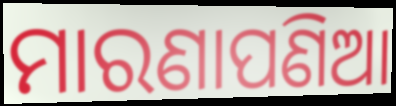
ମାରଣାପଣିଆ